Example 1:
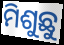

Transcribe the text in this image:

ମିଶୁଛୁ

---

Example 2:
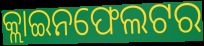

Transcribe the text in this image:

କ୍ଲାଇନଫେଲଟର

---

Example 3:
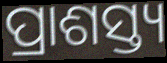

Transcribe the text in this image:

ପ୍ରାଶସ୍ତ୍ୟ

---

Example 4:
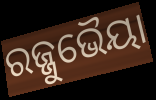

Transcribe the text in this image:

ରଜ୍ଜୁଭୈୟା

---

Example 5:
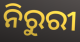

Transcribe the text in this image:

ନିରୁରୀ